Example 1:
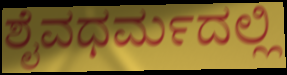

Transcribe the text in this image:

ಶೈವಧರ್ಮದಲ್ಲಿ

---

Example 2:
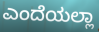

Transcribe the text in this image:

ಎಂದೆಯಲ್ಲಾ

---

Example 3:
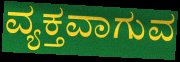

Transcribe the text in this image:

ವ್ಯಕ್ತವಾಗುವ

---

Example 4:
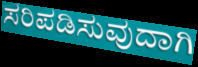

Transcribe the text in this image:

ಸರಿಪಡಿಸುವುದಾಗಿ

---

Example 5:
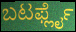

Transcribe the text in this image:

ಬಟರ್ಫ್ಲೈ